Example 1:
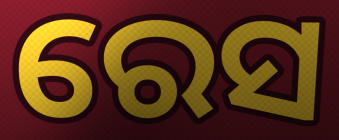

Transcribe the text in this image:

ରେସ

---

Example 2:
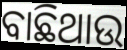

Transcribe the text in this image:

ବାଛିଥାଉ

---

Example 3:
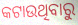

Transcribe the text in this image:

କଟାଉଥିବାରୁ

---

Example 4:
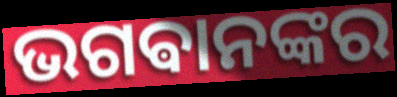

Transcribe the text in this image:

ଭଗଵାନଙ୍କର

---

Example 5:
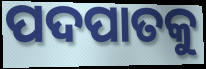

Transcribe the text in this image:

ପଦପାତକୁ